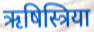
ऋषिस्त्रिया